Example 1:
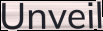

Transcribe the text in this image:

Unveil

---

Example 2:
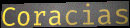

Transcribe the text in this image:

Coracias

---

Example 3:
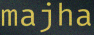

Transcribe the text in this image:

majha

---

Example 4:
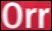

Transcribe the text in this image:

Orr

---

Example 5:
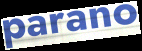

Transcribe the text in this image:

parano